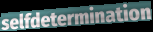
selfdetermination